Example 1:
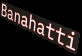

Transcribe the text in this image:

Banahatti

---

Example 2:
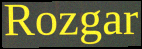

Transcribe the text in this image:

Rozgar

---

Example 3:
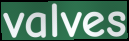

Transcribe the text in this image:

valves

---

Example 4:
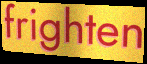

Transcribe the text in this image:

frighten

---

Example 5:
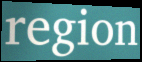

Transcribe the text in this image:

region